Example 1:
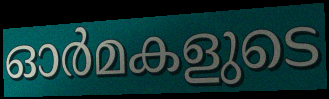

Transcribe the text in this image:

ഓർമകളുടെ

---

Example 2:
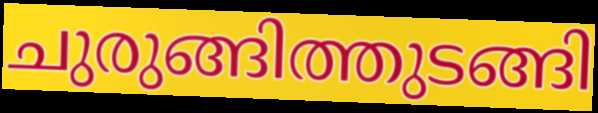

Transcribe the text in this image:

ചുരുങ്ങിത്തുടങ്ങി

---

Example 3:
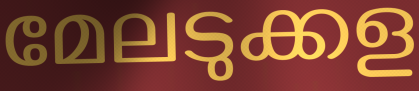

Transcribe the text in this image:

മേലടുക്കള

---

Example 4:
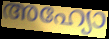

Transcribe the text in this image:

അഹ്യോ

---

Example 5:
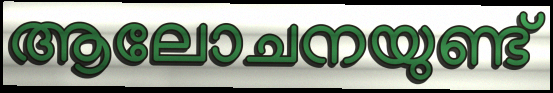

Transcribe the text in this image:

ആലോചനയുണ്ട്